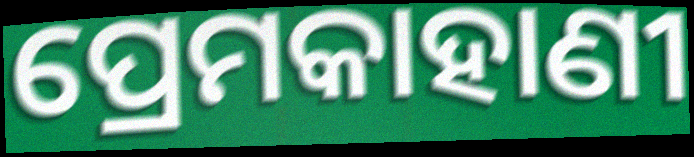
ପ୍ରେମକାହାଣୀ